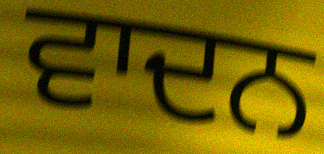
ਵਾਦਨ